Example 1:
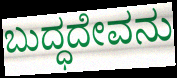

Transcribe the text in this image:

ಬುದ್ಧದೇವನು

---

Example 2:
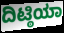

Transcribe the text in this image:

ದಿಟ್ಠಿಯಾ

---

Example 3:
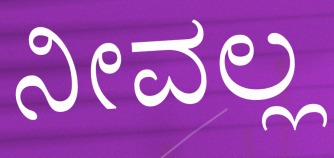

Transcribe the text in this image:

ನೀವಲ್ಲ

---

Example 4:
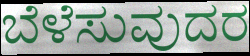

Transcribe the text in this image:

ಬೆಳೆಸುವುದರ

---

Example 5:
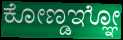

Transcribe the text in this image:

ಕೋಣ್ಡಞ್ಞೋ